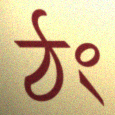
ঠং